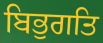
ਬਿਭੁਗਤਿ